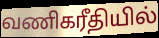
வணிகரீதியில்